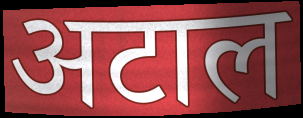
अटाल